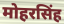
मोहरसिंह